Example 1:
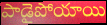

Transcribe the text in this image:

పాడైపోయాయి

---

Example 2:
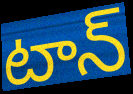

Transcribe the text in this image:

టాన్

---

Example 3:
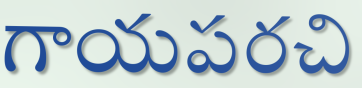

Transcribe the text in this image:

గాయపరచి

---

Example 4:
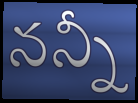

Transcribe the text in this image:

నన్నీ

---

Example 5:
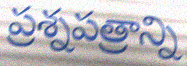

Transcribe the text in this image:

ప్రశ్నపత్రాన్ని